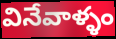
వినేవాళ్ళం